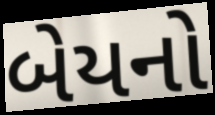
બેયનો